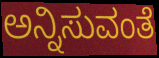
ಅನ್ನಿಸುವಂತೆ